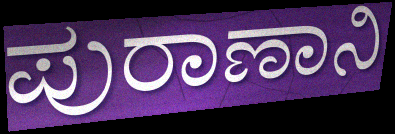
ಪುರಾಣಾನಿ